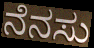
ನೆನಸು